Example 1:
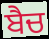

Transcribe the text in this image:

ਬੈਚ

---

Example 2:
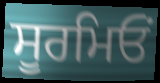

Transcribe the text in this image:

ਸੂਰਮਿਓਂ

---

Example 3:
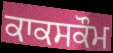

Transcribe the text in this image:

ਕਾਕਸਕੌਮ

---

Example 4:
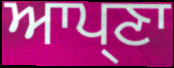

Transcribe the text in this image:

ਆਪ੍ਣਾ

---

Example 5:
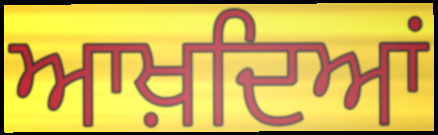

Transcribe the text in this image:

ਆਖ਼ਦਿਆਂ